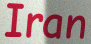
Iran